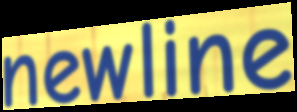
newline